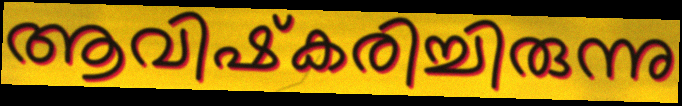
ആവിഷ്‌കരിച്ചിരുന്നു